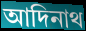
আদিনাথ